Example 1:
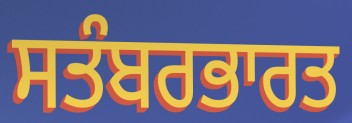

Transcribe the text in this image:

ਸਤੰਬਰਭਾਰਤ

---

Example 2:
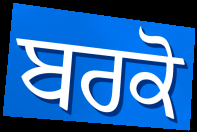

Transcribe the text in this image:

ਬਰਕੋ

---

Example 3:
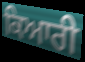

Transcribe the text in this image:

ਕਿਆਰੀ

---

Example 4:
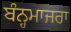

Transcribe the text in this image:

ਬੰਨ੍ਹਮਾਜਰਾ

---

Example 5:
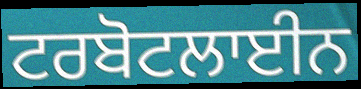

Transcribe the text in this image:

ਟਰਬੋਟਲਾਈਨ